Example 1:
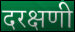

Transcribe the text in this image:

दरक्षणी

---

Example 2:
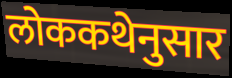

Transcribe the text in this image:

लोककथेनुसार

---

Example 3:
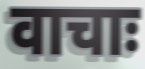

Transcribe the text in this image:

वाचाः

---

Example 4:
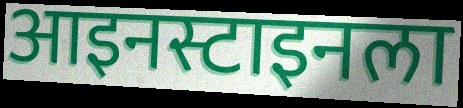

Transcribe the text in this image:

आइनस्टाइनला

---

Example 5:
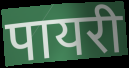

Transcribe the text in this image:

पायरी